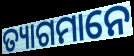
ତ୍ୟାଗମାନେ